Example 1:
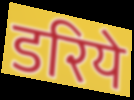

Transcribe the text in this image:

डरिये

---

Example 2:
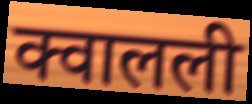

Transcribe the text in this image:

क्वालली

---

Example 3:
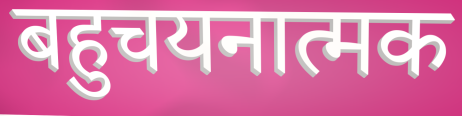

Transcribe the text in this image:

बहुचयनात्मक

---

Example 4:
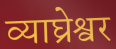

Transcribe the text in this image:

व्याघ्रेश्वर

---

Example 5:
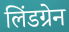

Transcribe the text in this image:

लिंडग्रेन